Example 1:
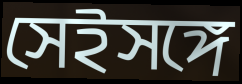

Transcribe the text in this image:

সেইসঙ্গে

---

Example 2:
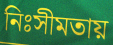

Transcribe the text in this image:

নিঃসীমতায়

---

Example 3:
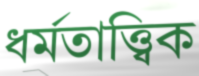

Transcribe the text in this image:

ধর্মতাত্ত্বিক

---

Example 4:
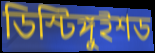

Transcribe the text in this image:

ডিস্টিঙ্গুইশড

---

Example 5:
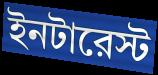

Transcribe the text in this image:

ইনটারেস্ট